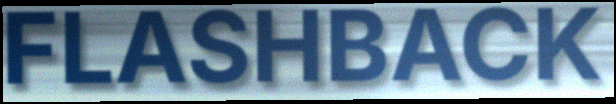
FLASHBACK